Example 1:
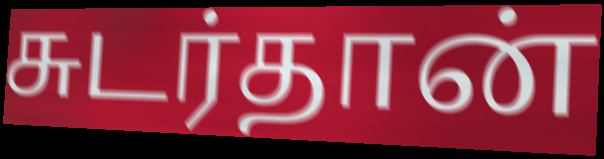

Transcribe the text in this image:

சுடர்தான்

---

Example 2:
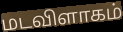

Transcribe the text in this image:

மடவிளாகம்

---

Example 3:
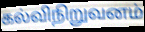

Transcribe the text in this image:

கல்விநிறுவனம்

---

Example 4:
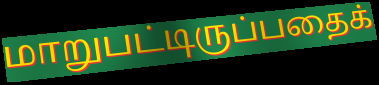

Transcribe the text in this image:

மாறுபட்டிருப்பதைக்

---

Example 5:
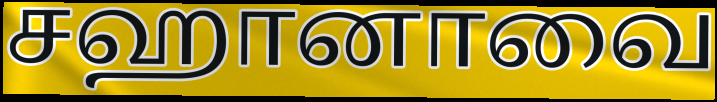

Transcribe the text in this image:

சஹானாவை